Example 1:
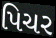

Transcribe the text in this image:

પિચર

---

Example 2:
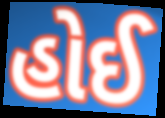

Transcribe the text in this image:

હોઈ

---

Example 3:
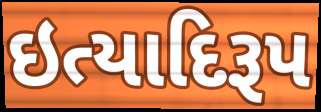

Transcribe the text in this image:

ઇત્યાદિરૂપ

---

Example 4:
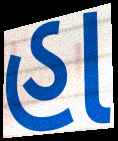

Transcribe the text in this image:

હા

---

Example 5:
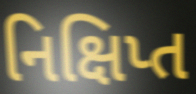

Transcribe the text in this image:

નિક્ષિપ્ત